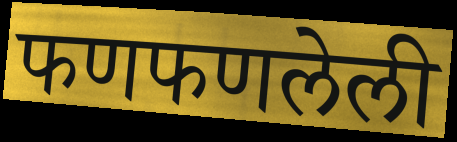
फणफणलेली